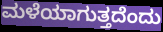
ಮಳೆಯಾಗುತ್ತದೆಂದು